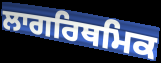
ਲਾਗਰਿਥਮਿਕ